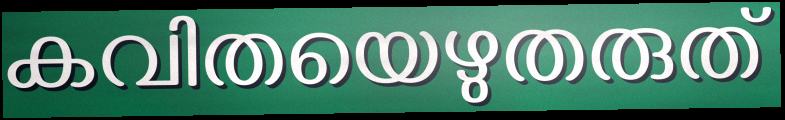
കവിതയെഴുതരുത്